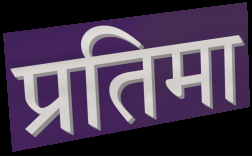
प्रतिमा